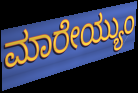
ಮಾರೇಯ್ಯುಂ